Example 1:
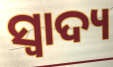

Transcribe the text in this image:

ସ୍ଵାଦ୍ୟ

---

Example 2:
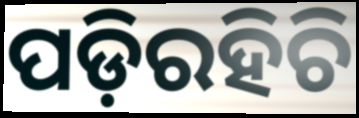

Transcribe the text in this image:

ପଡ଼ିରହିଚି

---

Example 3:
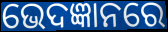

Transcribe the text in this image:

ଭେଦଜ୍ଞାନରେ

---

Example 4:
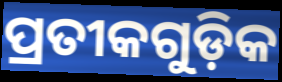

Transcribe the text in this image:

ପ୍ରତୀକଗୁଡ଼ିକ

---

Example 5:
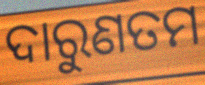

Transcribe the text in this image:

ଦାରୁଣତମ